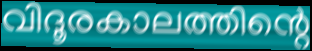
വിദൂരകാലത്തിന്റെ